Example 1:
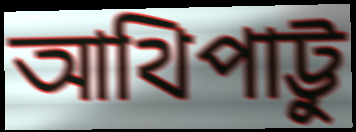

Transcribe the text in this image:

আথিপাট্টু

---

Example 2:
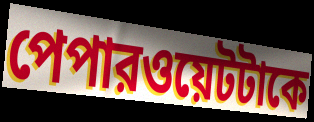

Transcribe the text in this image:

পেপারওয়েটটাকে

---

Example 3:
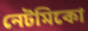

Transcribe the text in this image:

নেটমিকো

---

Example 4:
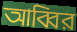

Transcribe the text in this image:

আব্বির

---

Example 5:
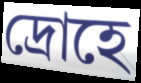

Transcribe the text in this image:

দ্রোহে